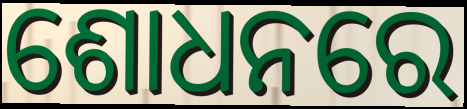
ଶୋଧନରେ